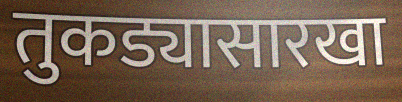
तुकड्यासारखा